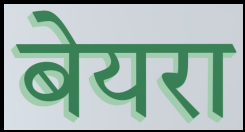
बेयरा